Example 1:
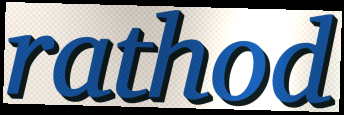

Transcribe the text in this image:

rathod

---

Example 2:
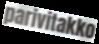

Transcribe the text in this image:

parivitakko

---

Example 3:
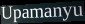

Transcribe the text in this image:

Upamanyu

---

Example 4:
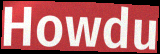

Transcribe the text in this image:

Howdu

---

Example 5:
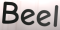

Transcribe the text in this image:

Beel